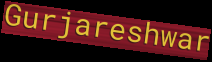
Gurjareshwar